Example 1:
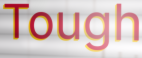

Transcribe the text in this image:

Tough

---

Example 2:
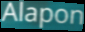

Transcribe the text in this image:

Alapon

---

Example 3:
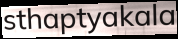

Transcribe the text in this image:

sthaptyakala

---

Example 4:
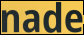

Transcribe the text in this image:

nade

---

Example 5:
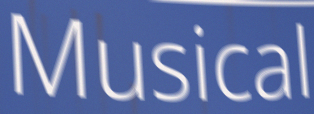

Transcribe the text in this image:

Musical